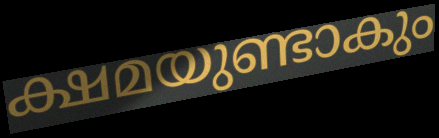
ക്ഷമയുണ്ടാകും